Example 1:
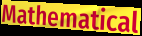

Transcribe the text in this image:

Mathematical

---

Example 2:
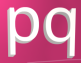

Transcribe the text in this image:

pq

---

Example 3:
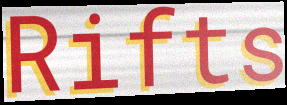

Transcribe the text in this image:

Rifts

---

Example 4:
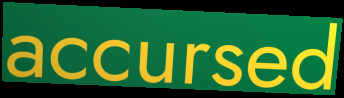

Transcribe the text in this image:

accursed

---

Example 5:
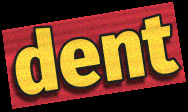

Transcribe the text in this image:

dent